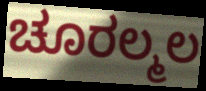
ಚೂರಲ್ಮಲ